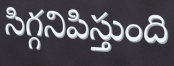
సిగ్గనిపిస్తుంది